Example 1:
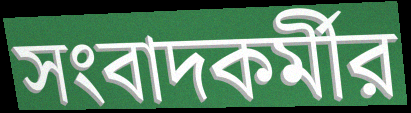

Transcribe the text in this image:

সংবাদকর্মীর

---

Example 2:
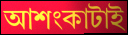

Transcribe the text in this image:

আশংকাটাই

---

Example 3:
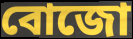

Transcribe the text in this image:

বোজো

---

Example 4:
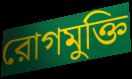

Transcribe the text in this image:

রোগমুক্তি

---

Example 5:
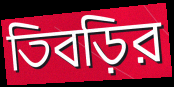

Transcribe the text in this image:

তিবড়ির